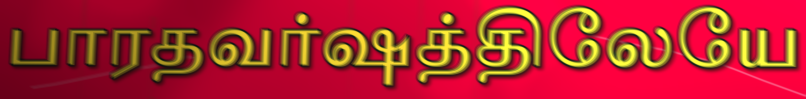
பாரதவர்ஷத்திலேயே